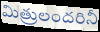
మిత్రులందరినీ